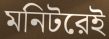
মনিটরেই